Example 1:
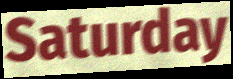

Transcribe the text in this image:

Saturday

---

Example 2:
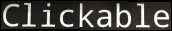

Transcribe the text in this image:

Clickable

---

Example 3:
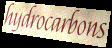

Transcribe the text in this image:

hydrocarbons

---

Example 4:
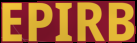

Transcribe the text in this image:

EPIRB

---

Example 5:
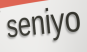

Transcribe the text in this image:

seniyo